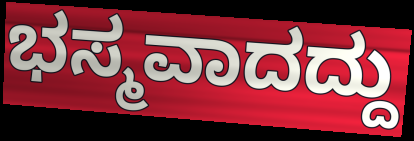
ಭಸ್ಮವಾದದ್ದು